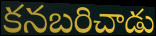
కనబరిచాడు